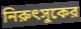
নিরুৎসুকের